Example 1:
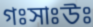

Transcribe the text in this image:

গঃসাঃউঃ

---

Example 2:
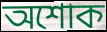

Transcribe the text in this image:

অশোক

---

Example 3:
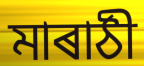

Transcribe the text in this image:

মাৰাঠী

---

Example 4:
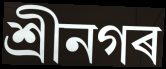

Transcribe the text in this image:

শ্ৰীনগৰ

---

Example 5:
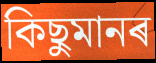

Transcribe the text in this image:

কিছুমানৰ